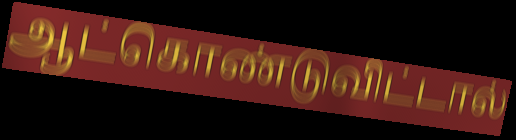
ஆட்கொண்டுவிட்டால்